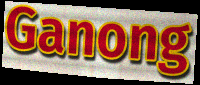
Ganong